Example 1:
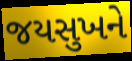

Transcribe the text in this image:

જયસુખને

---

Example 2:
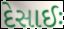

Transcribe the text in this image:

દેસાઈઃ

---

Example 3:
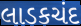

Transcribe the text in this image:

લાડકચંદ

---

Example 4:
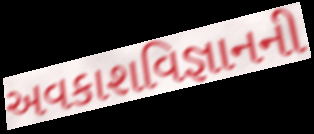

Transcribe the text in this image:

અવકાશવિજ્ઞાનની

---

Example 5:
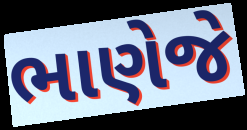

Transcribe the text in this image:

ભાણેજે